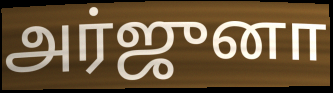
அர்ஜுனா